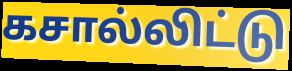
கசால்லிட்டு